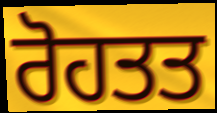
ਰੋਹਤਤ